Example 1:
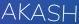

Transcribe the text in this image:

AKASH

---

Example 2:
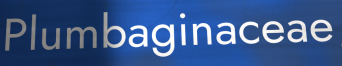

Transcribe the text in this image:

Plumbaginaceae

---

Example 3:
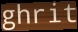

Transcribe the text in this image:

ghrit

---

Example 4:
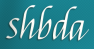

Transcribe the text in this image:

shbda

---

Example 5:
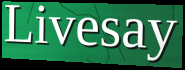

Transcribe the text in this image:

Livesay